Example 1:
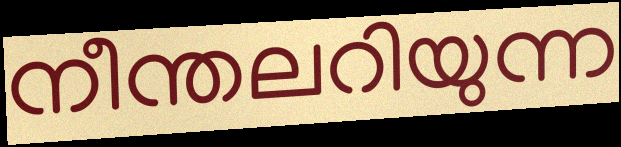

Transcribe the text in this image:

നീന്തലറിയുന്ന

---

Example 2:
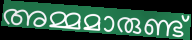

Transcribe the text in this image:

അമ്മമാരുണ്ട്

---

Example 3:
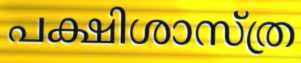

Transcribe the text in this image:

പക്ഷിശാസ്ത്ര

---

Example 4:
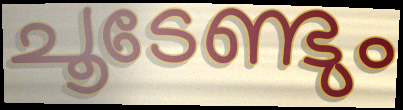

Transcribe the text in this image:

ചൂടേണ്ടും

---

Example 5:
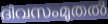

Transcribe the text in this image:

ദിവസംമുതൽ